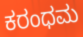
ಕರಂಧಮ